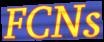
FCNs